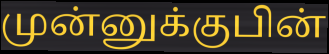
முன்னுக்குபின்